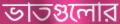
ভাতগুলোর